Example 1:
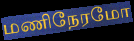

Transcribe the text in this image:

மணிநேரமோ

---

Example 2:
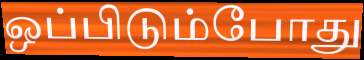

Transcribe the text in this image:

ஒப்பிடும்போது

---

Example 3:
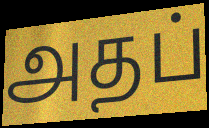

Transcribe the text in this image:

அதப்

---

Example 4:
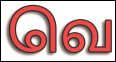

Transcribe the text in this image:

வெ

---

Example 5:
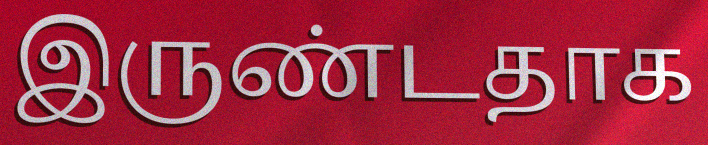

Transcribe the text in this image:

இருண்டதாக